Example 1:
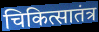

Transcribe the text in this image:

चिकित्सातंत्र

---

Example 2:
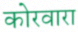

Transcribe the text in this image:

कोरवारा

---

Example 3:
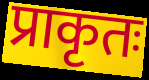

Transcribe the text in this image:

प्राकृतः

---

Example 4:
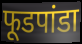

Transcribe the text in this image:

फूडपांडा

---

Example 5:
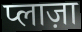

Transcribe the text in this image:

प्लाज़ा